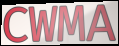
CWMA